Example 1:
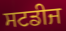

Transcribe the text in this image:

ਸਟਡੀਜ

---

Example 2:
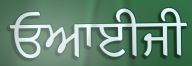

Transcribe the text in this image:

ਓਆਈਜੀ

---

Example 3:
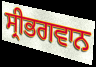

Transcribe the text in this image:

ਸ੍ਰੀਭਗਵਾਨ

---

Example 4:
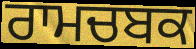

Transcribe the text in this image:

ਰਾਮਚਬਕ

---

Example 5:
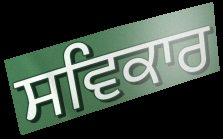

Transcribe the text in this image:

ਸਵਿਕਾਰ